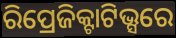
ରିପ୍ରେଜିକ୍ଟାଟିଭ୍ସରେ